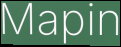
Mapin